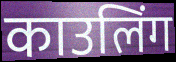
काउलिंग